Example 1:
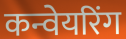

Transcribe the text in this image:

कन्वेयरिंग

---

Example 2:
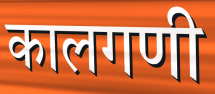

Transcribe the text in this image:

कालगणी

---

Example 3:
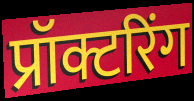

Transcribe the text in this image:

प्रॉक्टरिंग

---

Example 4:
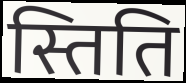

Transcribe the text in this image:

स्तिति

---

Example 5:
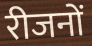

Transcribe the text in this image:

रीजनों